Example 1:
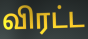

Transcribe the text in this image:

விரட்ட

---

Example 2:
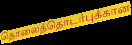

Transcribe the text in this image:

தொலைத்தொடர்புக்கான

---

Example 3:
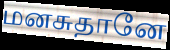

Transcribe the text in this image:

மனசுதானே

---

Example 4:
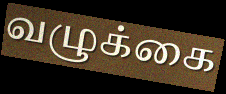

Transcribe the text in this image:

வழுக்கை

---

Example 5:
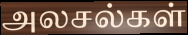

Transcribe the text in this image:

அலசல்கள்